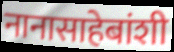
नानासाहेबांशी